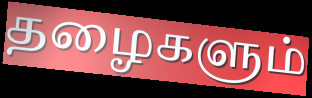
தழைகளும்